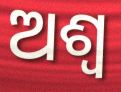
ଅଶ୍ବ